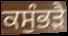
ਕਸੁੰਭੜੈ